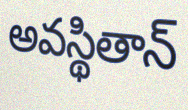
అవస్థితాన్